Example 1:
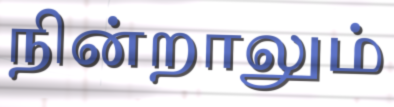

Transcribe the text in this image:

நின்றாலும்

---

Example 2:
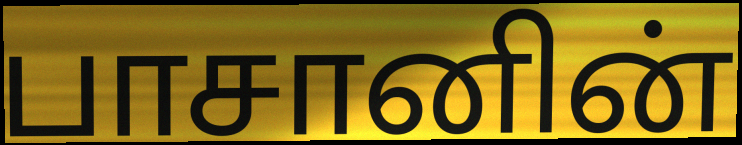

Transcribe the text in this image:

பாசானின்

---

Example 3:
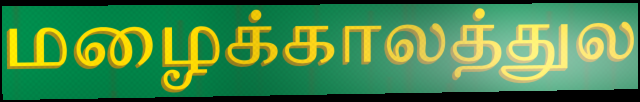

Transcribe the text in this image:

மழைக்காலத்துல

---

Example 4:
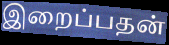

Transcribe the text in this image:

இறைப்பதன்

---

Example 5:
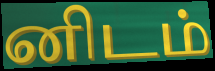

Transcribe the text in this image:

னிடம்